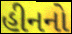
હીનનો